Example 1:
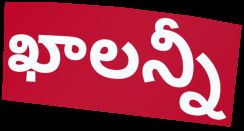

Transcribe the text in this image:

ఖాలన్నీ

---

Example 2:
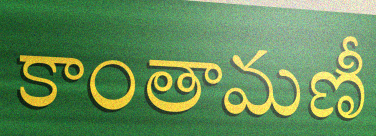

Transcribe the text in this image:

కాంతామణీ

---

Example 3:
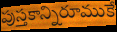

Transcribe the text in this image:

పుస్తకాన్నిరూముకే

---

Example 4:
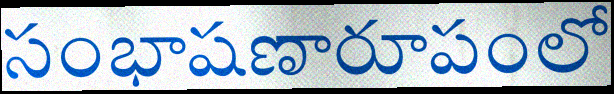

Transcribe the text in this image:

సంభాషణారూపంలో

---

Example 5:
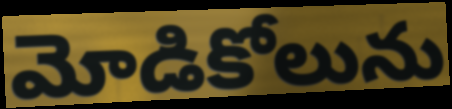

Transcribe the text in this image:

మోడికోలును